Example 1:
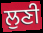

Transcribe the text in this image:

ਲੁਣੀ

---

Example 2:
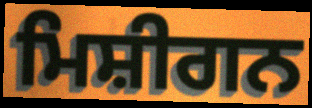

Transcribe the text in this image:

ਮਿਸ਼ੀਗਨ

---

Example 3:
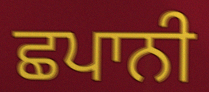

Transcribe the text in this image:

ਛਪਾਨੀ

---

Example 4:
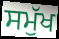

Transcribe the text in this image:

ਸਮੁੱਖ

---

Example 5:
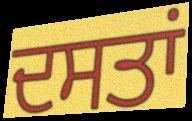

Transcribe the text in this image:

ਦਸਤਾਂ